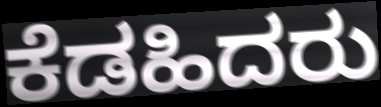
ಕೆಡಹಿದರು